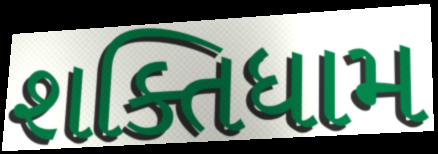
શક્તિધામ